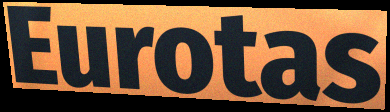
Eurotas